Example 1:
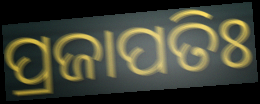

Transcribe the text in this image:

ପ୍ରଜାପତିଃ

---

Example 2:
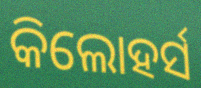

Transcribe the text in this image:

କିଲୋହର୍ସ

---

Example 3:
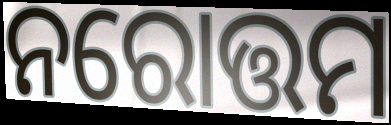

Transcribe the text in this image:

ନରୋତ୍ତମ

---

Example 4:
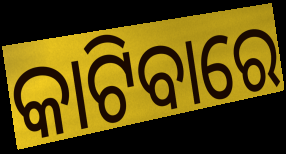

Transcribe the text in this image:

କାଟିବାରେ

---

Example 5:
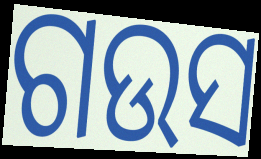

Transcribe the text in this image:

ଗଉସ